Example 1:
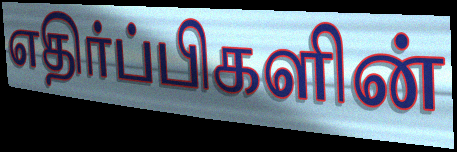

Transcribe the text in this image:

எதிர்ப்பிகளின்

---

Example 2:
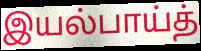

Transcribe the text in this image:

இயல்பாய்த்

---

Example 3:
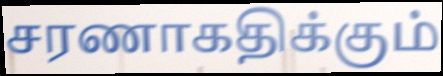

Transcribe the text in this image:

சரணாகதிக்கும்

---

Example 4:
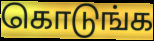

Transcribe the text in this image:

கொடுங்க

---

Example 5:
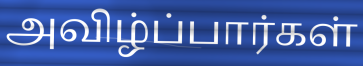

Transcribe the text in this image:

அவிழ்ப்பார்கள்